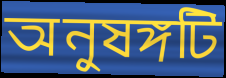
অনুষঙ্গটি